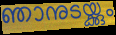
ഞാനുടയ്ക്കും